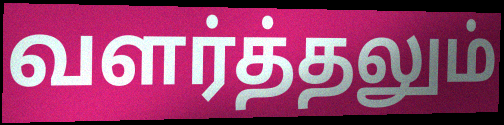
வளர்த்தலும்